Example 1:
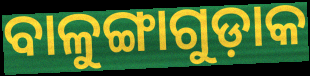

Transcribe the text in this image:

ବାଳୁଙ୍ଗାଗୁଡ଼ାକ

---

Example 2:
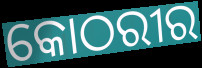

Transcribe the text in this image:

କୋଠରୀର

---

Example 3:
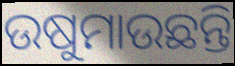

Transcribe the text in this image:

ଉଷୁମାଉଛନ୍ତି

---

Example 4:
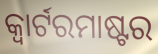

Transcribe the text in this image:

କ୍ୱାର୍ଟରମାଷ୍ଟର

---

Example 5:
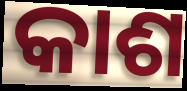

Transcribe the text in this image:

କାଶ